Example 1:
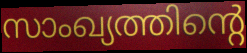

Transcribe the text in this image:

സാംഖ്യത്തിന്റെ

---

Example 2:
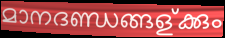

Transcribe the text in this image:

മാനദണ്ഡങ്ങള്ക്കും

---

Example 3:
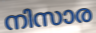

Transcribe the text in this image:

നിസാര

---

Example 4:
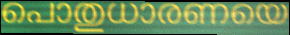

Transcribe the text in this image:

പൊതുധാരണയെ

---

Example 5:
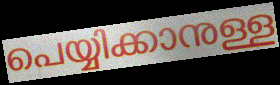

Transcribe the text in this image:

പെയ്യിക്കാനുള്ള